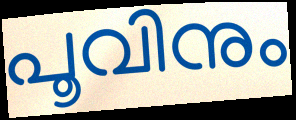
പൂവിനും